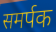
समर्पक